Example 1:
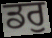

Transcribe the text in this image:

ਡਰੁ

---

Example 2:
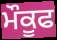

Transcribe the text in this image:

ਮੌਕੂਫ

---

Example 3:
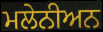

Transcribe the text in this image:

ਮਲੇਨੀਅਨ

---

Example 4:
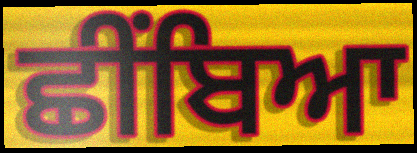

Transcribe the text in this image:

ਛੀਂਬਿਆ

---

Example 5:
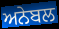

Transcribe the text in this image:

ਅਨੇਬਲ